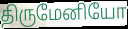
திருமேனியோ